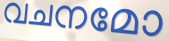
വചനമോ